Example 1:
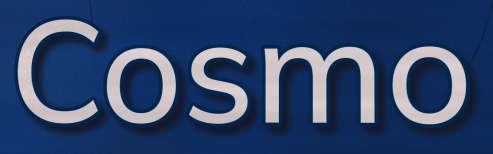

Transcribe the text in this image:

Cosmo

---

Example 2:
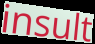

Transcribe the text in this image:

insult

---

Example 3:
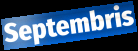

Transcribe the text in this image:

Septembris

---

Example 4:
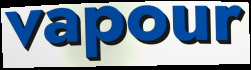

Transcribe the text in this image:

vapour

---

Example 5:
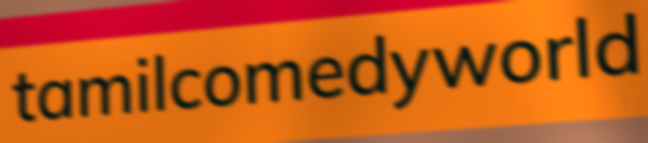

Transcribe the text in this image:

tamilcomedyworld